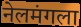
नेलमंगला